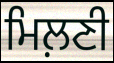
ਮਿਲ਼ਣੀ